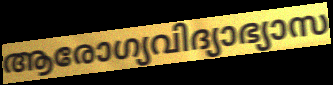
ആരോഗ്യവിദ്യാഭ്യാസ